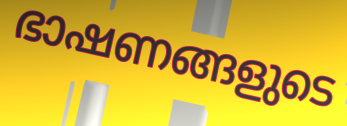
ഭാഷണങ്ങളുടെ